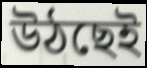
উঠছেই